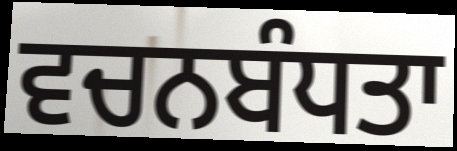
ਵਚਨਬੰਧਤਾ